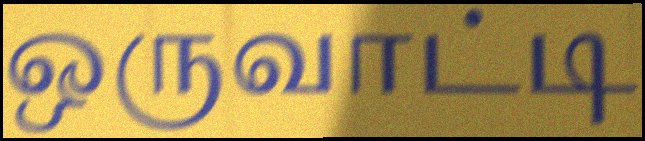
ஒருவாட்டி